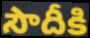
సౌదీకి